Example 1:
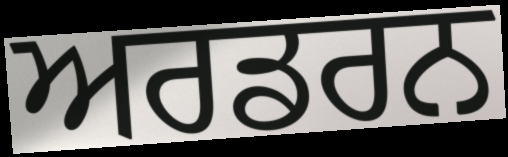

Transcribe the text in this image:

ਅਰਡਰਨ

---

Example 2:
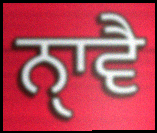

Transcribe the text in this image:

ਨੑਾਵੈ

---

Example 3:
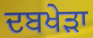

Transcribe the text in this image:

ਦਬਖੇੜਾ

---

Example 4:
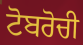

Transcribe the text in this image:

ਟੋਬਰੋਚੀ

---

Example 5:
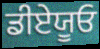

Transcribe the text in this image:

ਡੀਏਯੂਓ